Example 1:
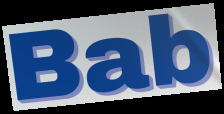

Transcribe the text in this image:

Bab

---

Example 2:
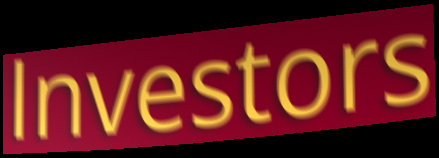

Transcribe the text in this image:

Investors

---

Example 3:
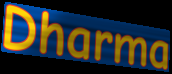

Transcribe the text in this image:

Dharma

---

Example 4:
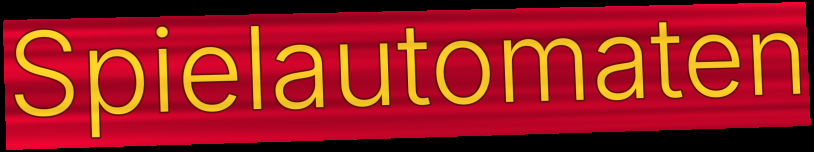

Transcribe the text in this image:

Spielautomaten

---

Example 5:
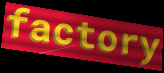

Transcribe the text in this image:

factory